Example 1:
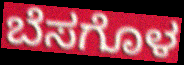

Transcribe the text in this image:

ಬೆಸಗೊಳ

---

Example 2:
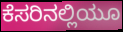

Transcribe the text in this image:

ಕೆಸರಿನಲ್ಲಿಯೂ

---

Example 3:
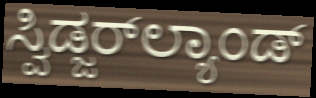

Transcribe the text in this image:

ಸ್ವಿಡ್ಜರ್‌ಲ್ಯಾಂಡ್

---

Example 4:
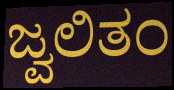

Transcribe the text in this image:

ಜ್ವಲಿತಂ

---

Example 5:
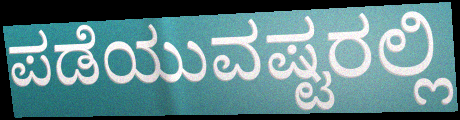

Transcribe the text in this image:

ಪಡೆಯುವಷ್ಟರಲ್ಲಿ